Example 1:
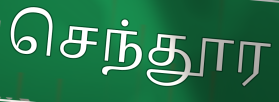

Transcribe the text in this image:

செந்தூர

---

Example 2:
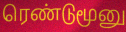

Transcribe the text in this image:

ரெண்டுமூனு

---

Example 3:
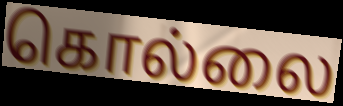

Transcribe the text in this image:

கொல்லை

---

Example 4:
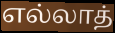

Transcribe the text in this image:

எல்லாத்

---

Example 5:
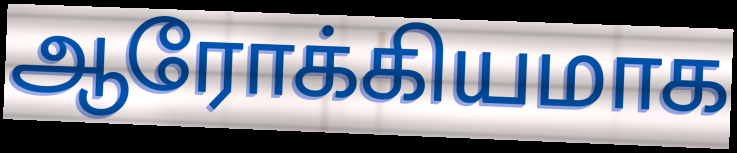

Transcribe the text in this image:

ஆரோக்கியமாக